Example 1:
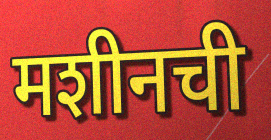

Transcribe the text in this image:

मशीनची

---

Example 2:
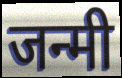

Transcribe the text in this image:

जन्मी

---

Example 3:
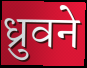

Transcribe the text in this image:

ध्रुवने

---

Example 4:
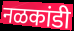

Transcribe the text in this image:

नळकांडी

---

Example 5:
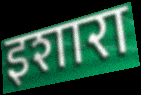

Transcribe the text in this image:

इशारा